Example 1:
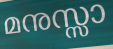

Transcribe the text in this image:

മനുസ്സാ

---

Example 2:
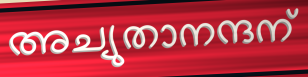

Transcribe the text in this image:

അച്യുതാനന്ദന്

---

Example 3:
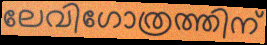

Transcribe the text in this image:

ലേവിഗോത്രത്തിന്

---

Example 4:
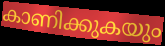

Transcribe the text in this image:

കാണിക്കുകയും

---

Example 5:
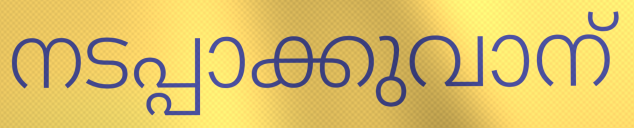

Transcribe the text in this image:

നടപ്പാക്കുവാന്